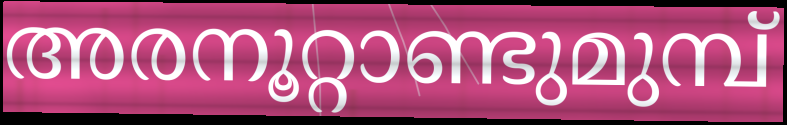
അരനൂറ്റാണ്ടുമുമ്പ്